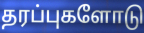
தரப்புகளோடு